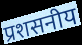
प्रशसनीय